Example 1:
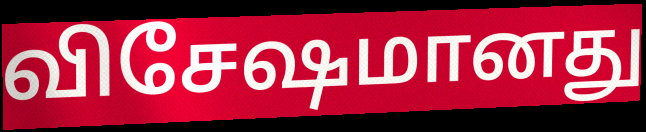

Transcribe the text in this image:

விசேஷமானது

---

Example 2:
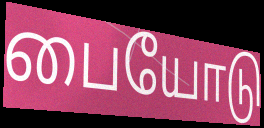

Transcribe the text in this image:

பையோடு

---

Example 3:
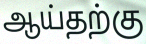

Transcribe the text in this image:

ஆய்தற்கு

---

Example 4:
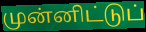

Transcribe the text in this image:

முன்னிட்டுப்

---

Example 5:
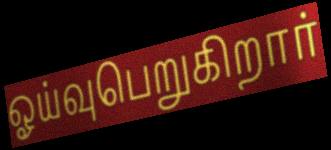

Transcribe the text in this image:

ஓய்வுபெறுகிறார்